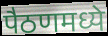
पैठणमध्ये